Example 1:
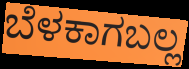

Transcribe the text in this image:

ಬೆಳಕಾಗಬಲ್ಲ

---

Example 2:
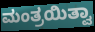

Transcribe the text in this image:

ಮಂತ್ರಯಿತ್ವಾ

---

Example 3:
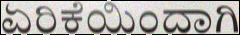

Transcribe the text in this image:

ಏರಿಕೆಯಿಂದಾಗಿ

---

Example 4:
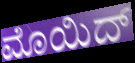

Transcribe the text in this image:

ಮೊಯಿದ್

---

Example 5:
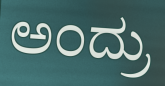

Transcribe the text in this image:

ಅಂದ್ರು